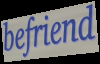
befriend